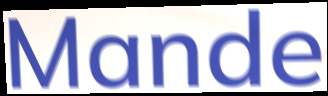
Mande